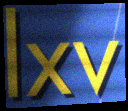
lxv